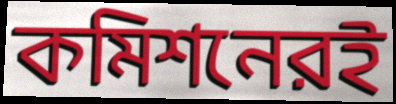
কমিশনেরই